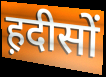
ह़दीसों